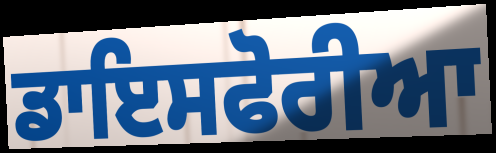
ਡਾਇਸਫੋਰੀਆ